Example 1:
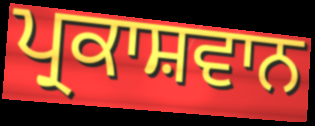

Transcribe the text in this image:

ਪ੍ਰਕਾਸ਼ਵਾਨ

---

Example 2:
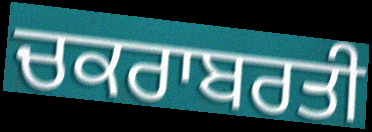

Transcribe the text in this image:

ਚਕਰਾਬਰਤੀ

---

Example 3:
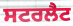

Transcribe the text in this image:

ਸਟਰਲੈਟ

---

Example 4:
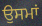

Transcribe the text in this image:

ਉਸਮਾਂ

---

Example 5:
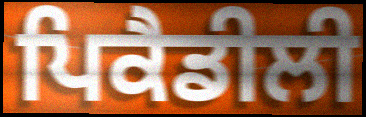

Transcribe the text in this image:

ਪਿਕੈਡੀਲੀ